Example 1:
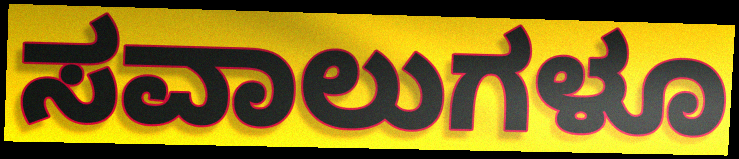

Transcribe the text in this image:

ಸವಾಲುಗಳೂ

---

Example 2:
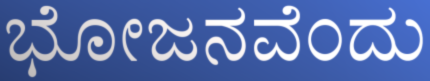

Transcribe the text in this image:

ಭೋಜನವೆಂದು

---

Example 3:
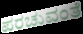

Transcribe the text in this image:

ಪರಚುವಂತೆ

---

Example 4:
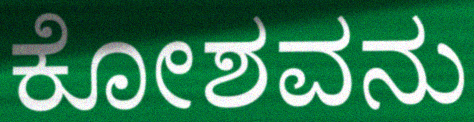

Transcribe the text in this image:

ಕೋಶವನು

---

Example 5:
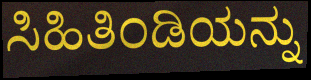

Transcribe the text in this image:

ಸಿಹಿತಿಂಡಿಯನ್ನು